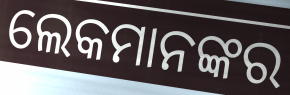
ଲେକମାନଙ୍କର